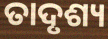
ତାଦୃଶ୍ୟ